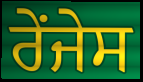
ਰੇਂਜੇਸ